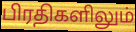
பிரதிகளிலும்